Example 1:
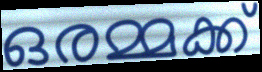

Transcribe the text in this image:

ഒരമ്മക്ക്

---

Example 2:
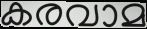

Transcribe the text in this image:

കരവാമ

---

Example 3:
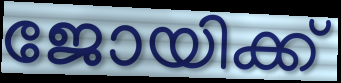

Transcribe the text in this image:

ജോയിക്ക്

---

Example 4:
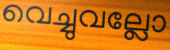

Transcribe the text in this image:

വെച്ചുവല്ലോ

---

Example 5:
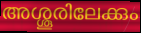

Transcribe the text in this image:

അശ്ശൂരിലേക്കും